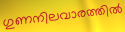
ഗുണനിലവാരത്തിൽ